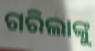
ଗରିଲାଙ୍କୁ